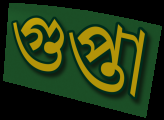
গুপ্তা